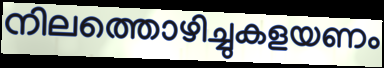
നിലത്തൊഴിച്ചുകളയണം